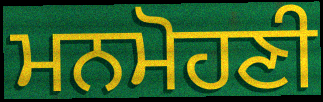
ਮਨਮੋਹਣੀ